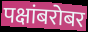
पक्षांबरोबर